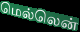
மெல்லென்